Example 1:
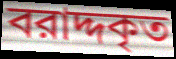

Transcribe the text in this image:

বরাদ্দকৃত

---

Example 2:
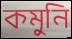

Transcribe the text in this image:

কমুনি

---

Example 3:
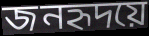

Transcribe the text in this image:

জনহৃদয়ে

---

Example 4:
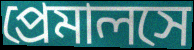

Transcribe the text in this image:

প্রেমালসে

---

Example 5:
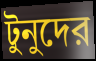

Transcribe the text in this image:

টুনুদের